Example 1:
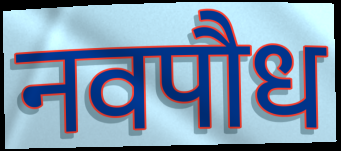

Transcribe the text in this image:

नवपौध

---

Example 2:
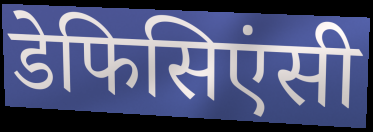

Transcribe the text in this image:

डेफिसिएंसी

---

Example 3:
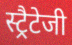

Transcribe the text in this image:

स्ट्रैटेजी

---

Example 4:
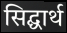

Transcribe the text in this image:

सिद्घार्थ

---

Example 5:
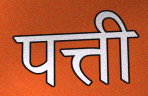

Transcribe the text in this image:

पत्ती